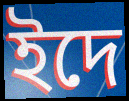
ইদে